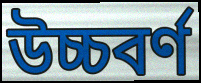
উচ্চবৰ্ণ